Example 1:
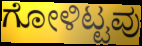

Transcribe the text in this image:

ಗೋಳಿಟ್ಟವು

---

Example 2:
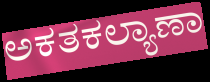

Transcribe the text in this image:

ಅಕತಕಲ್ಯಾಣಾ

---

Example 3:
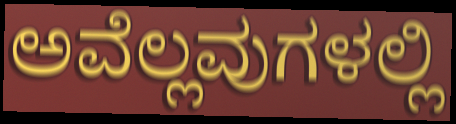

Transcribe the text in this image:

ಅವೆಲ್ಲವುಗಳಲ್ಲಿ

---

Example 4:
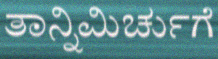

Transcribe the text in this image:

ತಾನ್ನಿಮಿರ್ಚುಗೆ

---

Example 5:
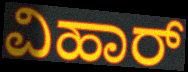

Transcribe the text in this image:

ವಿಹಾರ್